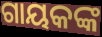
ଗାୟକଙ୍କ